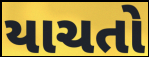
યાચતો